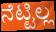
ನೆಟ್ಟಿಲ್ಲ